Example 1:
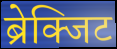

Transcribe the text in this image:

ब्रेक्जिट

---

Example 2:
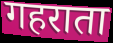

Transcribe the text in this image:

गहराता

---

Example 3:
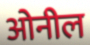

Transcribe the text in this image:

ओनील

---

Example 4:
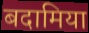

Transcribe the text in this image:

बदामिया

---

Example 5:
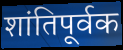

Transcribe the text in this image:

शांतिपूर्वक